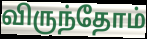
விருந்தோம்